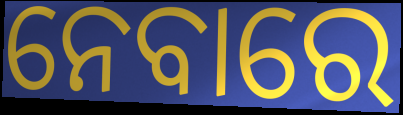
ନେବାରେ